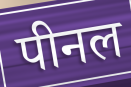
पीनल